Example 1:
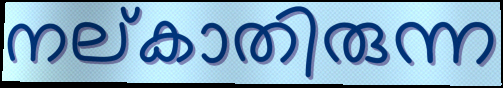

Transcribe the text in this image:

നല്കാതിരുന്ന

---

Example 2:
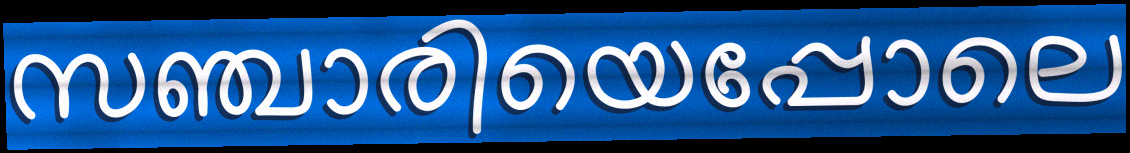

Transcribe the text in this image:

സഞ്ചാരിയെപ്പോലെ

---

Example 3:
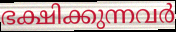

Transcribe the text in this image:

ഭക്ഷിക്കുന്നവർ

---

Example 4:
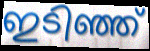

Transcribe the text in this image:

ഇടിഞ്ഞ്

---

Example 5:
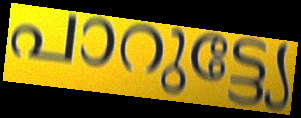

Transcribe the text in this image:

പാറുട്ട്യേ